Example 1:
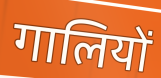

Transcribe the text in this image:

गालियों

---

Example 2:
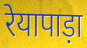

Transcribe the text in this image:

रेयापाड़ा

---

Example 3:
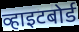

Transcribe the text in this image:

व्हाइटबोर्ड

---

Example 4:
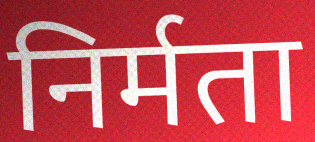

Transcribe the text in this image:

निर्मता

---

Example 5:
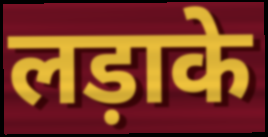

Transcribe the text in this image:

लड़ाके